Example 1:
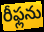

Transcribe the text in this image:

రీఫ్లను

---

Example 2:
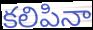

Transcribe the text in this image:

కలిపినా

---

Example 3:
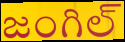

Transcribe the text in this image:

జంగిల్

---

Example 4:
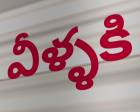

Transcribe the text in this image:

వీళ్ళకి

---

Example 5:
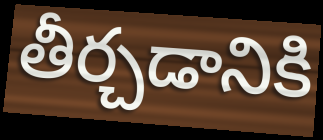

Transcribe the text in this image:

తీర్చడానికి